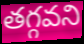
తగ్గవని